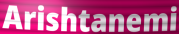
Arishtanemi